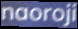
naoroji